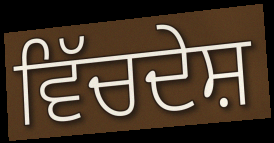
ਵਿੱਚਦੇਸ਼